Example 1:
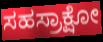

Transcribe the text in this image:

ಸಹಸ್ರಾಕ್ಷೋ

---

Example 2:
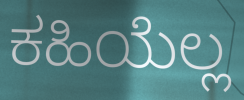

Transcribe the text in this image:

ಕಹಿಯೆಲ್ಲ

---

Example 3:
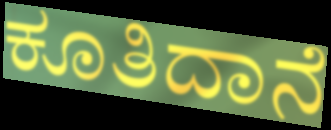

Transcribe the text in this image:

ಕೂತಿದಾನೆ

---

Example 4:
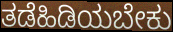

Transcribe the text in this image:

ತಡೆಹಿಡಿಯಬೇಕು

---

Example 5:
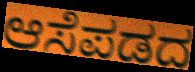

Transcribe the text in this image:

ಆಸೆಪಡದ